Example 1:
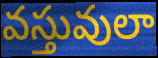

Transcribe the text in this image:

వస్తువులా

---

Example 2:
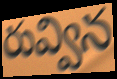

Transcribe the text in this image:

రువ్విన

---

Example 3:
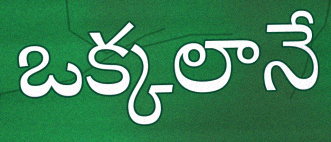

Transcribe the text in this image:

ఒక్కలానే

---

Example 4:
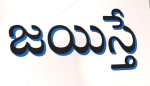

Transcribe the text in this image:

జయిస్తే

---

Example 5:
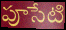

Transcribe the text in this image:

పూసేటి